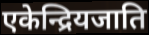
एकेन्द्रियजाति